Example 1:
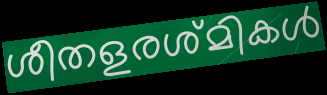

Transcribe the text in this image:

ശീതളരശ്മികൾ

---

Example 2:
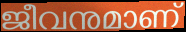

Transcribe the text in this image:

ജീവനുമാണ്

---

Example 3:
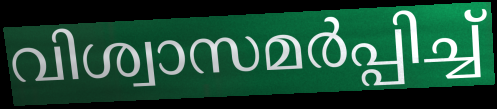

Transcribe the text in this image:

വിശ്വാസമർപ്പിച്ച്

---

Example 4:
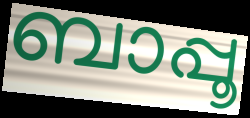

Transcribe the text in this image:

ബാപ്പൂ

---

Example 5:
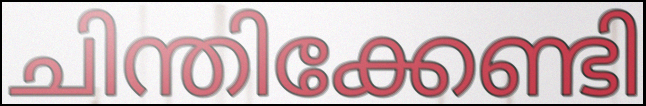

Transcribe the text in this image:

ചിന്തിക്കേണ്ടി